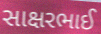
સાક્ષરભાઈ